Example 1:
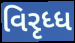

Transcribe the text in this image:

વિરૃધ્ધ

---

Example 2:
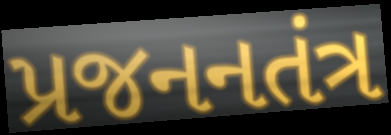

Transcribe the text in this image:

પ્રજનનતંત્ર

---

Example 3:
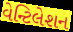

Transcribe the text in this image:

વેન્ટિલેશન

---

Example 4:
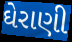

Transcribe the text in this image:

ઘેરાણી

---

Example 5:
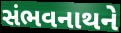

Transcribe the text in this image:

સંભવનાથને